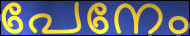
പേനേം